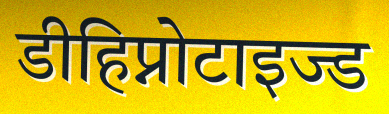
डीहिप्नोटाइज्ड